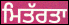
ਮਿਤੱਰਤਾ